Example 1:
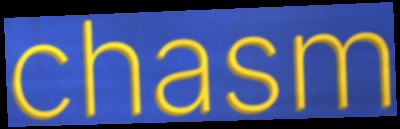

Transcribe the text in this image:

chasm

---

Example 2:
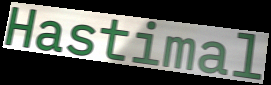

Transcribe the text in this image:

Hastimal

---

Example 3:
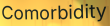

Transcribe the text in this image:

Comorbidity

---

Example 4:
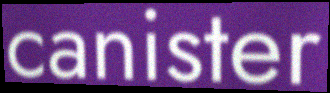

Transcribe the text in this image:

canister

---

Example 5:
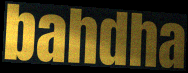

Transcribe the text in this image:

bahdha